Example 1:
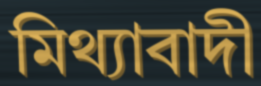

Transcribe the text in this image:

মিথ্যাবাদী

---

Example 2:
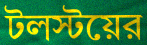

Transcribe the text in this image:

টলস্টয়ের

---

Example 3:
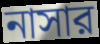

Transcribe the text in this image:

নাসার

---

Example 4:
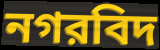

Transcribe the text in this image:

নগরবিদ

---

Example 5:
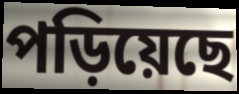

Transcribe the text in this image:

পড়িয়েছে